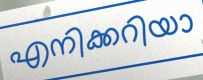
എനിക്കറിയാ